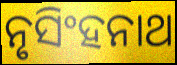
ନୃସିଂହନାଥ